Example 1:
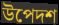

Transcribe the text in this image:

উপেদশ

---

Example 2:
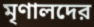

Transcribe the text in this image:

মৃণালদের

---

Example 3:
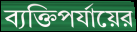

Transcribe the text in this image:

ব্যক্তিপর্যায়ের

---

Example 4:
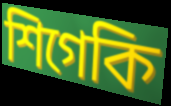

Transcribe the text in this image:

শিগেকি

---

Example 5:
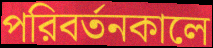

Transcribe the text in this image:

পরিবর্তনকালে